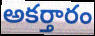
అకర్తారం